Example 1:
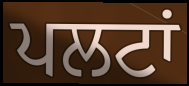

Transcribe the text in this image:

ਪਲਟਾਂ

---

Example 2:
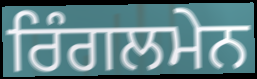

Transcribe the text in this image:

ਰਿੰਗਲਮੇਨ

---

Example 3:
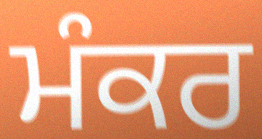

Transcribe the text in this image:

ਮੰਕਰ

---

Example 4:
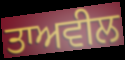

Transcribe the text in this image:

ਤਾਅਵੀਲ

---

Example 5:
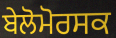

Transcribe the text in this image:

ਬੇਲੋਮੋਰਸਕ